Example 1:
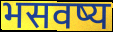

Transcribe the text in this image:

भसवष्य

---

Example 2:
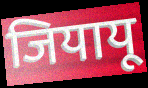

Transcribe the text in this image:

जियायू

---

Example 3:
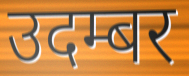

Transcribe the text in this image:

उदम्बर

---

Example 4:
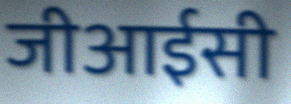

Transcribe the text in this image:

जीआईसी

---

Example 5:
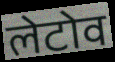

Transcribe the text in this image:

लेटोव